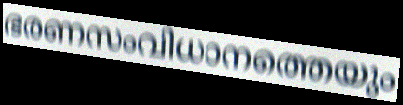
ഭരണസംവിധാനത്തെയും